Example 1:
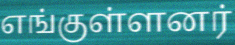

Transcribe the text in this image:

எங்குள்ளனர்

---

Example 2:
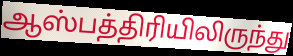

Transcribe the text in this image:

ஆஸ்பத்திரியிலிருந்து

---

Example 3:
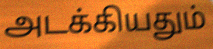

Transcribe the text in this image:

அடக்கியதும்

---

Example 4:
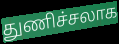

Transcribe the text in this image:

துணிச்சலாக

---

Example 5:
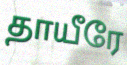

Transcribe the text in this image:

தாயீரே